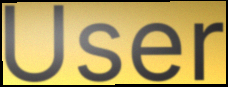
User